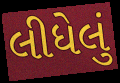
લીધેલું